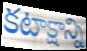
కటాక్షాన్ని